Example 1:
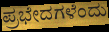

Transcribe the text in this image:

ಪ್ರಭೇದಗಳೆಂದು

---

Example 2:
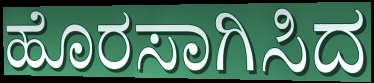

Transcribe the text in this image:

ಹೊರಸಾಗಿಸಿದ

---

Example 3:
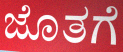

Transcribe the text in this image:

ಜೊತಗೆ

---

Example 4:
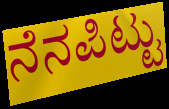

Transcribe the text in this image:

ನೆನಪಿಟ್ಟು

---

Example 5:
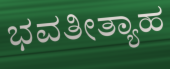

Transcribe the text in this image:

ಭವತೀತ್ಯಾಹ